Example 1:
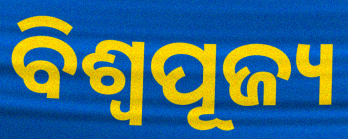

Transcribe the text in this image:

ବିଶ୍ୱପୂଜ୍ୟ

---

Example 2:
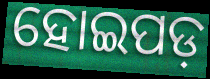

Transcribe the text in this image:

ହୋଇପଡ଼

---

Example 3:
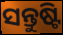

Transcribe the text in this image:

ସନ୍ତୁଷ୍ଟି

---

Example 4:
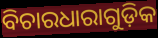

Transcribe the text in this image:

ବିଚାରଧାରାଗୁଡ଼ିକ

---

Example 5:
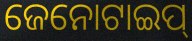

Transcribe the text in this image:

ଜେନୋଟାଇପ୍